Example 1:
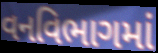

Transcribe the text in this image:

વનવિભાગમાં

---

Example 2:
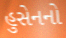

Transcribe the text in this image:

હુસેનનો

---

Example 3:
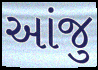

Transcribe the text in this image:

આંજુ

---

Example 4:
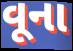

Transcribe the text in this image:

વૂના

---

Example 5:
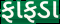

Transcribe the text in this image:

ફાફડા